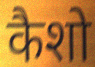
कैशो